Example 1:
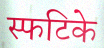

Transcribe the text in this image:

स्फटिके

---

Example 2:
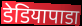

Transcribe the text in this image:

डेडियापाडा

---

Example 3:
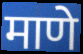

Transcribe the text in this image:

माणे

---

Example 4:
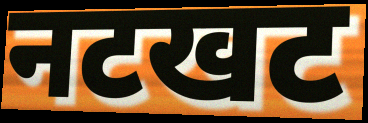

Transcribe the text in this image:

नटखट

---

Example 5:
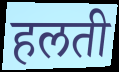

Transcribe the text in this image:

हलती